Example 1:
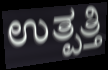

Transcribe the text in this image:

ಉತ್ಪತ್ತಿ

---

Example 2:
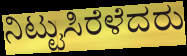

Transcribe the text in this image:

ನಿಟ್ಟುಸಿರೆಳೆದರು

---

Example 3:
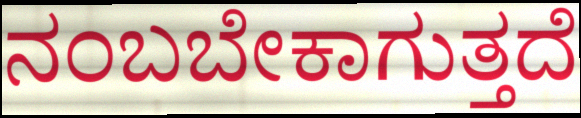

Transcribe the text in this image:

ನಂಬಬೇಕಾಗುತ್ತದೆ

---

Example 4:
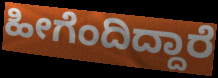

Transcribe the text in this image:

ಹೀಗೆಂದಿದ್ದಾರೆ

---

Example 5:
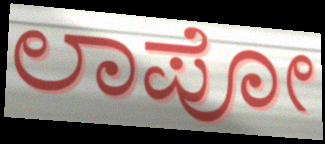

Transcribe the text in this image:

ಲಾಪೋ